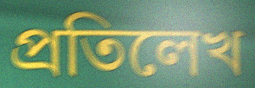
প্রতিলেখ